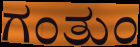
ಗಂತುಂ